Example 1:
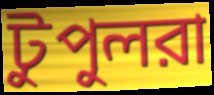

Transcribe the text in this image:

টুপুলরা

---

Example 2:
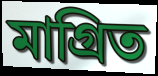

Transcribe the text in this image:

মাগ্রিত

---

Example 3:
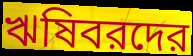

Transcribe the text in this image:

ঋষিবরদের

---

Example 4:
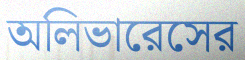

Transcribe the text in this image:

অলিভারেসের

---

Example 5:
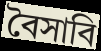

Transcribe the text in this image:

বৈসাবি